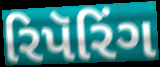
રિપૅરિંગ